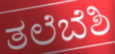
ತಲೆಬೆಶಿ